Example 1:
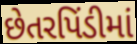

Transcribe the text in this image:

છેતરપિંડીમાં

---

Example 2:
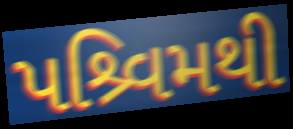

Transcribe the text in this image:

પશ્ર્વિમથી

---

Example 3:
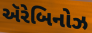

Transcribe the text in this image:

ઍરેબિનોઝ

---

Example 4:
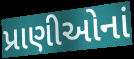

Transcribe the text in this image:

પ્રાણીઓનાં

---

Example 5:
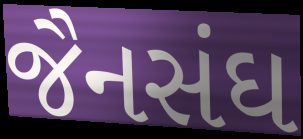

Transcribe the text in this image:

જૈનસંઘ